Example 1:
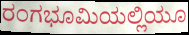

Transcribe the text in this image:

ರಂಗಭೂಮಿಯಲ್ಲಿಯೂ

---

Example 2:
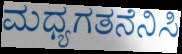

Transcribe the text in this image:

ಮಧ್ಯಗತನೆನಿಸಿ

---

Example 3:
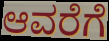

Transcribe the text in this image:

ಆವರೆಗೆ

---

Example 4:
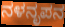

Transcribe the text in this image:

ನಳನೃಪನ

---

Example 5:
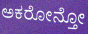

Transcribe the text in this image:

ಅಕರೋನ್ತೋ